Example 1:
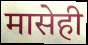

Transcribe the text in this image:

मासेही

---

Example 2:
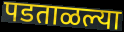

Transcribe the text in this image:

पडताळल्या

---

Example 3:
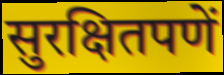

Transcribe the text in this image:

सुरक्षितपणें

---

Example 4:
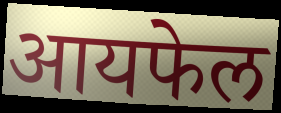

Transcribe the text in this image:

आयफेल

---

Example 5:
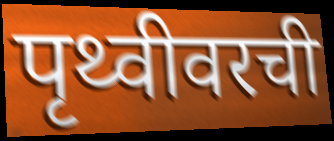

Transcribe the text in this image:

पृथ्वीवरची